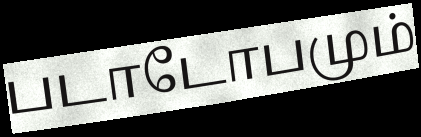
படாடோபமும்